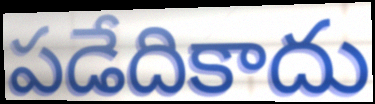
పడేదికాదు